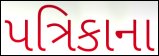
પત્રિકાના